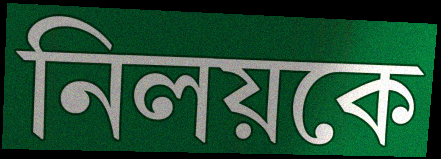
নিলয়কে